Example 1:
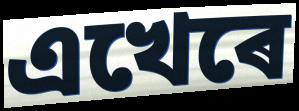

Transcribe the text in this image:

এখেৰে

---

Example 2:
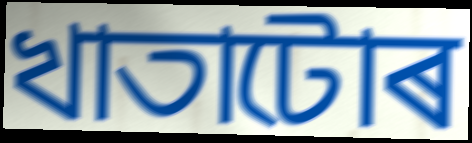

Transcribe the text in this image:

খাতাটোৰ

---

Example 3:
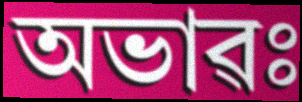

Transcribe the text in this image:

অভাৱঃ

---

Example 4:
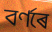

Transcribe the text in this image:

বৰ্ণৰে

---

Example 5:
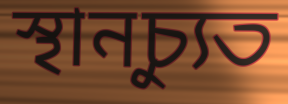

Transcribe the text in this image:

স্থানচ্যুত